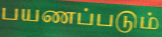
பயணப்படும்